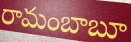
రామంబాబూ